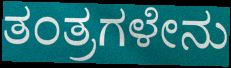
ತಂತ್ರಗಳೇನು